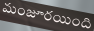
మంజూరయింది